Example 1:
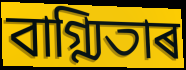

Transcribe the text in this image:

বাগ্মিতাৰ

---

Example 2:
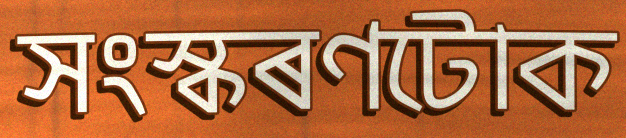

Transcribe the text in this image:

সংস্কৰণটোক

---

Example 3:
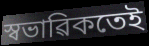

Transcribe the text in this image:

স্বভাৱিকতেই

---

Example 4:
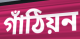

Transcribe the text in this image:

গাঁঠিয়ন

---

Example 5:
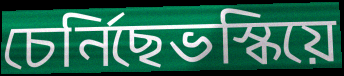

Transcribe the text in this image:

চেৰ্নিছেভস্কিয়ে